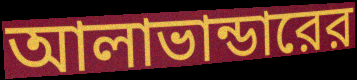
আলাভান্ডারের